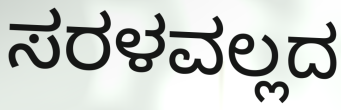
ಸರಳವಲ್ಲದ